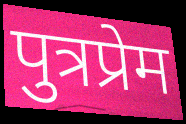
पुत्रप्रेम